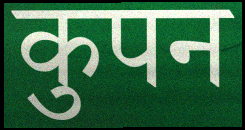
कुपन